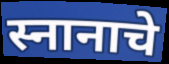
स्नानाचे